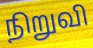
நிறுவி